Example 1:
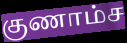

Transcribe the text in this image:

குணாம்ச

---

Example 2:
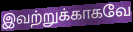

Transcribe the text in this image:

இவற்றுக்காகவே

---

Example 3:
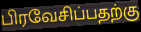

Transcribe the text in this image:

பிரவேசிப்பதற்கு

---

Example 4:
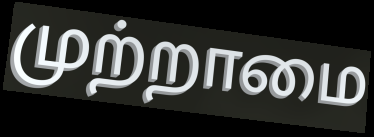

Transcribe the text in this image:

முற்றாமை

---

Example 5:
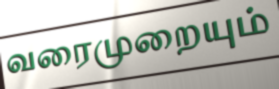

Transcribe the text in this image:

வரைமுறையும்